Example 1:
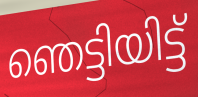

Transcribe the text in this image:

ഞെട്ടിയിട്ട്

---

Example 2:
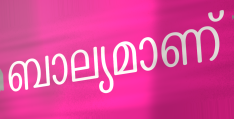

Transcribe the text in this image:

ബാല്യമാണ്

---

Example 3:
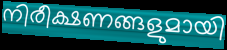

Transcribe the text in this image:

നിരീക്ഷണങ്ങളുമായി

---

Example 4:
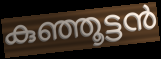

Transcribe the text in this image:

കുഞ്ഞൂട്ടൻ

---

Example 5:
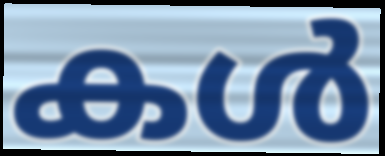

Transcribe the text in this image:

കൾ